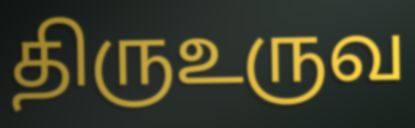
திருஉருவ